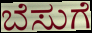
ಬೆಸುಗೆ